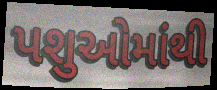
પશુઓમાંથી